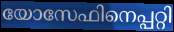
യോസേഫിനെപ്പറ്റി